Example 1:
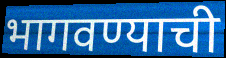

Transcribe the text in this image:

भागवण्याची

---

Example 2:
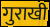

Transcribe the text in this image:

गुराखी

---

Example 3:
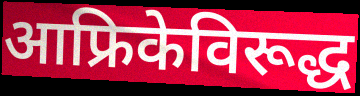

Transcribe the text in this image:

आफ्रिकेविरूद्ध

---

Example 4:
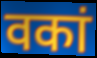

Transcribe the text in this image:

वकां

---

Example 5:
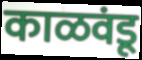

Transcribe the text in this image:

काळवंडू